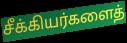
சீக்கியர்களைத்